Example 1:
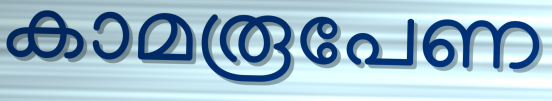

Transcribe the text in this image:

കാമരൂപേണ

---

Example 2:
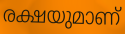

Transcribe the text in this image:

രക്ഷയുമാണ്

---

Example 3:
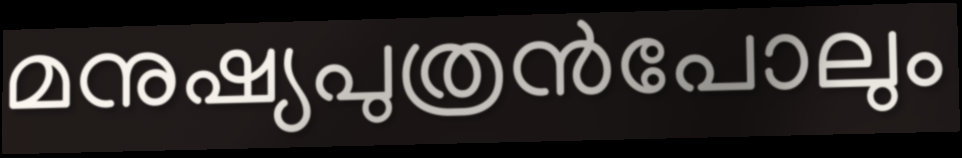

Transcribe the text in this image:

മനുഷ്യപുത്രൻപോലും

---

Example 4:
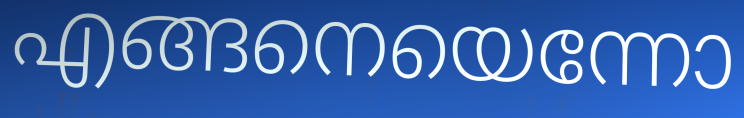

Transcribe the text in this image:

എങ്ങനെയെന്നോ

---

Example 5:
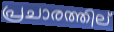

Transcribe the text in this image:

പ്രചാരത്തില്